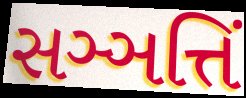
સઞ્ઞત્તિં